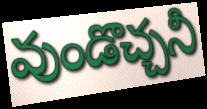
వుండొచ్చనీ